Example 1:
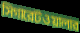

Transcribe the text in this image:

সিগারেটওয়ালার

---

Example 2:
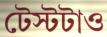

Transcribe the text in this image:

টেস্টটাও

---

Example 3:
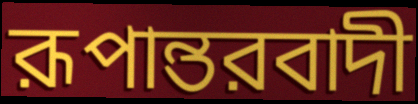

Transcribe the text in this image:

রূপান্তরবাদী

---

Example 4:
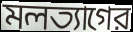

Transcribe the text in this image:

মলত্যাগের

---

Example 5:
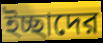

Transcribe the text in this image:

ইচ্ছাদের